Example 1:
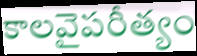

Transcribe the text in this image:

కాలవైపరీత్యం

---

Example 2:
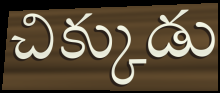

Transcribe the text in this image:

చిక్కుడు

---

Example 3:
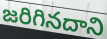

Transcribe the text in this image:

జరిగినదాని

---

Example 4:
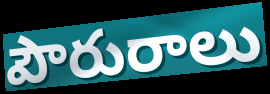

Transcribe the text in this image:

పౌరురాలు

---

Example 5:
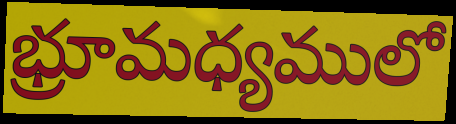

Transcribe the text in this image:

భ్రూమధ్యములో